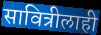
सावित्रीलाही